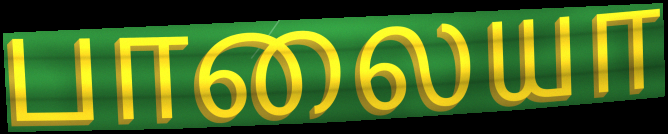
பாலையா